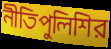
নীতিপুলিশির